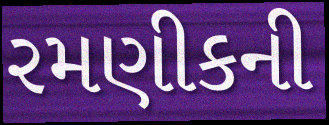
રમણીકની